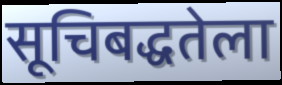
सूचिबद्धतेला